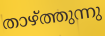
താഴ്ത്തുന്നു